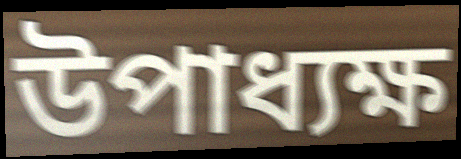
উপাধ্যক্ষ